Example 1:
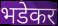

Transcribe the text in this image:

भडेकर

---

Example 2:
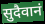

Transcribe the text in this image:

सुदैवानं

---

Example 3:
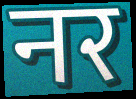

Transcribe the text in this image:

नर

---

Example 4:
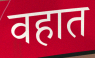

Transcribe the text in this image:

वहात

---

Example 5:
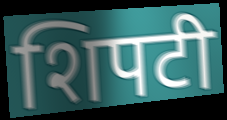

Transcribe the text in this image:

शिपटी